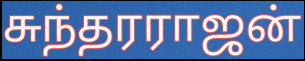
சுந்தரராஜன்